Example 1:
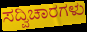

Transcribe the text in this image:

ಸದ್ವಿಚಾರಗಳು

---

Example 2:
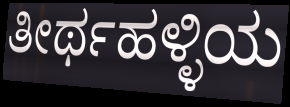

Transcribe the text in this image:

ತೀರ್ಥಹಳ್ಳಿಯ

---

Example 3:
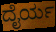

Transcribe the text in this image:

ದೈರ್ಯ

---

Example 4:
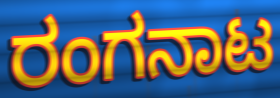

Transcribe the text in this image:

ರಂಗನಾಟ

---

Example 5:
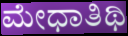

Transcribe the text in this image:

ಮೇಧಾತಿಥಿ